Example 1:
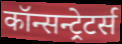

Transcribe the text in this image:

कॉन्सन्ट्रेटर्स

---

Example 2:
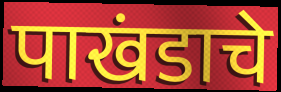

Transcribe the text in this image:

पाखंडाचे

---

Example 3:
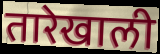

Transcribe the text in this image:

तारेखाली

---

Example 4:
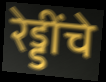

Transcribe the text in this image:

रेड्डींचे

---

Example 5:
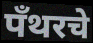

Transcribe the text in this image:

पँथरचे